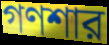
গণশার